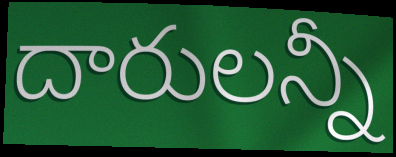
దారులన్నీ